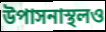
উপাসনাস্থলও